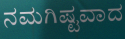
ನಮಗಿಷ್ಟವಾದ